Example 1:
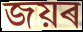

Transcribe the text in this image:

জয়ৰ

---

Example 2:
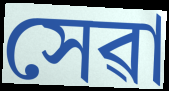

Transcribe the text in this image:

সেৱা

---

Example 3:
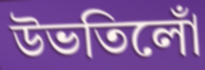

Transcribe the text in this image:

উভতিলোঁ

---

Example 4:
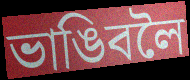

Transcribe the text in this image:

ভাঙিবলৈ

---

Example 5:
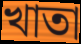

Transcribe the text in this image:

খাতা